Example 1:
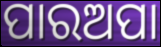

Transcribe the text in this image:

ପାରଅପା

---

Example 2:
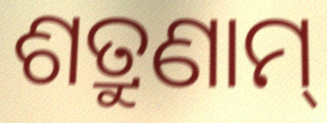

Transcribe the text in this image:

ଶତ୍ରୁଣାମ୍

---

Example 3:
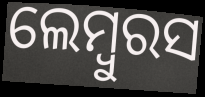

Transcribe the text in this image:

ଲେମ୍ବୁରସ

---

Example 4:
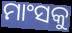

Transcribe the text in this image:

ମାଂସକୁ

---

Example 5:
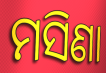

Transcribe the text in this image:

ମସିଣା